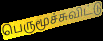
பெருமூச்சுவிட்டு